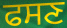
ਫਸਣ